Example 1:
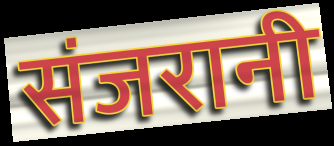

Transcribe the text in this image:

संजरानी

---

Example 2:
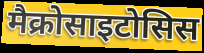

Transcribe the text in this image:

मैक्रोसाइटोसिस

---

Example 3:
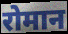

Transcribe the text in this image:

रोमान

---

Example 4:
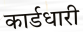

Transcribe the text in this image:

कार्डधारी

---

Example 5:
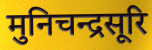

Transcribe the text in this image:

मुनिचन्द्रसूरि